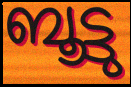
ബൂട്ടു